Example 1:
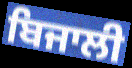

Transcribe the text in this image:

ਬਿਜਾਲੀ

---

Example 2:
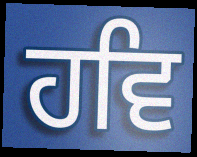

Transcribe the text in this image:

ਹਵਿ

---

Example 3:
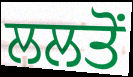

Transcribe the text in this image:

ਲਲਤੋਂ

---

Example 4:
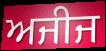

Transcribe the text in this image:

ਅਜੀਜ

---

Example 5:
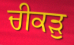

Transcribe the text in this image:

ਚੀਕੜੁ